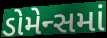
ડોમેન્સમાં